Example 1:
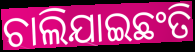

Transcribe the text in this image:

ଚାଲିଯାଇଛଂତି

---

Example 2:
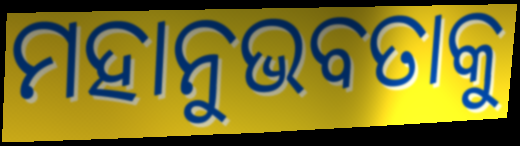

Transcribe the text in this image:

ମହାନୁଭବତାକୁ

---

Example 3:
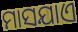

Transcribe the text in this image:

ମାସଯାଏ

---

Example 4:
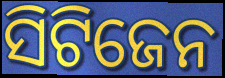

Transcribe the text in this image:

ସିଟିଜେନ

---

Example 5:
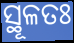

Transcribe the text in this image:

ସ୍ଥୂଳତଃ